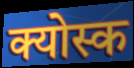
क्योस्क